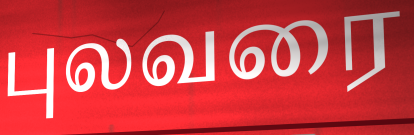
புலவரை